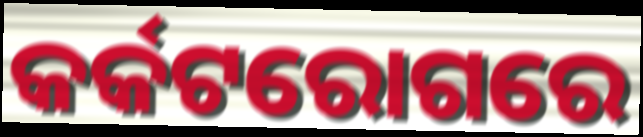
କର୍କଟରୋଗରେ